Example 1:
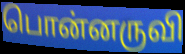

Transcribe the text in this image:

பொன்னருவி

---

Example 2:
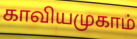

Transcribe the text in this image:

காவியமுகாம்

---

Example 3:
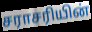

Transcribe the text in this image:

சராசரியின்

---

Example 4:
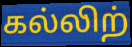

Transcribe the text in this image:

கல்லிற்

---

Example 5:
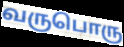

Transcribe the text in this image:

வருபொரு